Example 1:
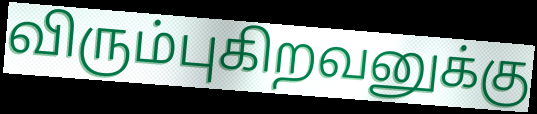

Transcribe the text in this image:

விரும்புகிறவனுக்கு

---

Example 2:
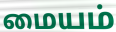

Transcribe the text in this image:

மையம்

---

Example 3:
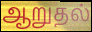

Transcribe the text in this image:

ஆறுதல்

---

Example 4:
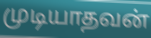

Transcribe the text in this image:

முடியாதவன்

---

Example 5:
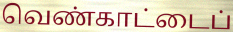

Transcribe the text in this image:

வெண்காட்டைப்